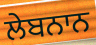
ਲੇਬਨਾਨ